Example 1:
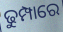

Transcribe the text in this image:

ଢୁମ୍ପାରେ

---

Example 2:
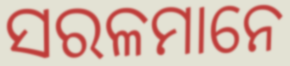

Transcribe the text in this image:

ସରଳମାନେ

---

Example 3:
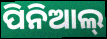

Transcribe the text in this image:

ପିନିଆଲ୍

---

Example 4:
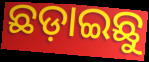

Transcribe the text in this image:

ଛଡ଼ାଇଛୁ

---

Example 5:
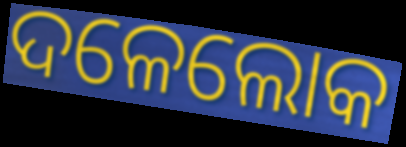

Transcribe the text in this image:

ଦଳେଲୋକ